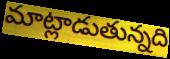
మాట్లాడుతున్నది